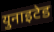
युनाइटेड